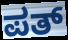
ಪತ್